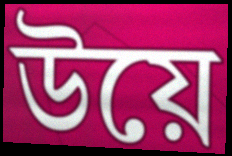
উয়ে